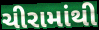
ચીરામાંથી